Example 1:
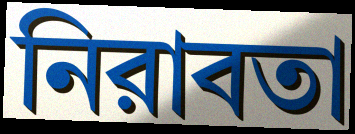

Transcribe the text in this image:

নিরাবতা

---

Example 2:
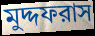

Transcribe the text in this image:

মুদ্দফরাস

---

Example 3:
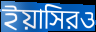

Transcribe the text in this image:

ইয়াসিরও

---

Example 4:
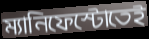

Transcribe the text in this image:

ম্যানিফেস্টোতেই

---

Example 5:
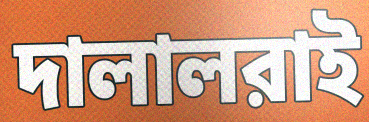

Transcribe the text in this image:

দালালরাই